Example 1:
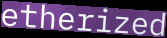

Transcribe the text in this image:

etherized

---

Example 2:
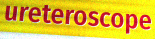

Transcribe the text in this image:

ureteroscope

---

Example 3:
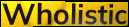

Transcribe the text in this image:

Wholistic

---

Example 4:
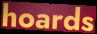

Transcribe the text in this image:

hoards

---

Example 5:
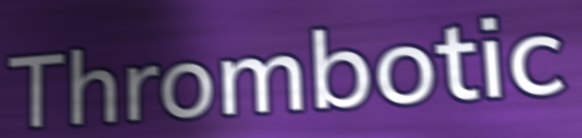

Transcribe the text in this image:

Thrombotic